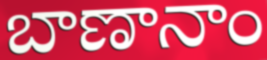
బాణానాం